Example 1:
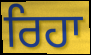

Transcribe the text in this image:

ਰਿਹਾ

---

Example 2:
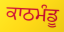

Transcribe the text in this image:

ਕਾਠਮੰਡੂ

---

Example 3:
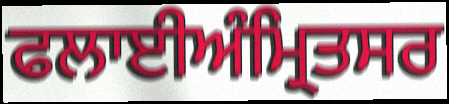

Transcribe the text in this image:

ਫਲਾਈਅੰਮ੍ਰਿਤਸਰ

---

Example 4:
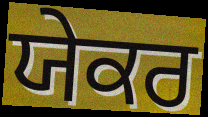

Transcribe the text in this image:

ਯੇਕਰ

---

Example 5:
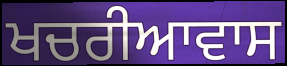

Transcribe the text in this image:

ਖਚਰੀਆਵਾਸ